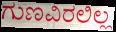
ಗುಣವಿರಲಿಲ್ಲ